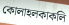
কোলাহলকাকলি